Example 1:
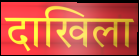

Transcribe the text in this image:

दाखिला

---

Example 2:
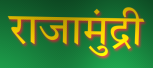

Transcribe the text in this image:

राजामुंद्री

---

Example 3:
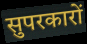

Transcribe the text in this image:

सुपरकारों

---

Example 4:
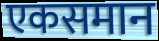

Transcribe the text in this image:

एकसमान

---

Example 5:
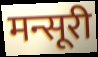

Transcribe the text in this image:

मन्सूरी